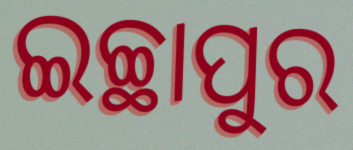
ଇଚ୍ଛାପୁର